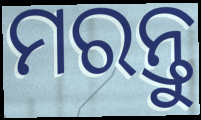
ମରନ୍ତୁ